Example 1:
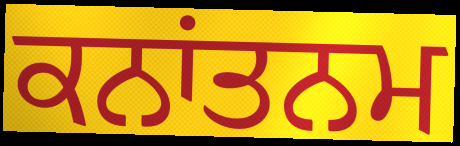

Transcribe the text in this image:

ਕਨਾਂਤਨਮ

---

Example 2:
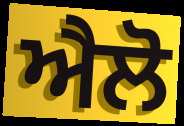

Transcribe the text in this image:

ਐਲੋ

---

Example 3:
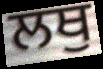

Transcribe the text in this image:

ਲਥੁ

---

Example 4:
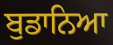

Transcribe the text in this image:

ਬੁਡਾਨਿਆ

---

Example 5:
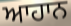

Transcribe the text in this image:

ਆਹਾਨ